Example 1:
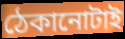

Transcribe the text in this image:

ঠেকানোটাই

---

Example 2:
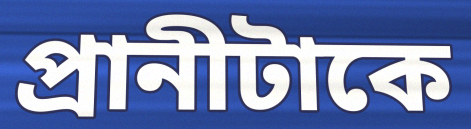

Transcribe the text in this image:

প্রানীটাকে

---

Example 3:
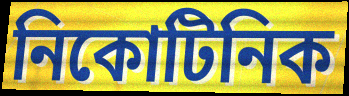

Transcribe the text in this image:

নিকোটিনিক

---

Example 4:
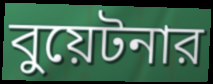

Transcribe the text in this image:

বুয়েটনার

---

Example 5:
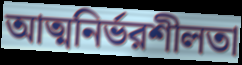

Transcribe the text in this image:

আত্মনির্ভরশীলতা